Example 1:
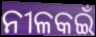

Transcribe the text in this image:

ନୀଳକଇଁ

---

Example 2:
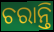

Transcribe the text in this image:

ଚରାନ୍ତି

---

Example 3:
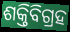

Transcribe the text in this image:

ଶକ୍ତିବିଗ୍ରହ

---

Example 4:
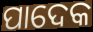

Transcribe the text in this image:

ପାଦେକ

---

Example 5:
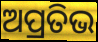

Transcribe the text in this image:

ଅପ୍ରତିଭ